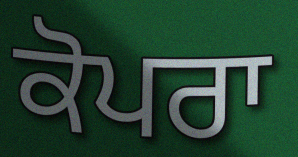
ਕੋਪਰਾ